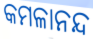
କମଳାନନ୍ଦ